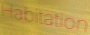
Habitation